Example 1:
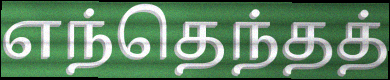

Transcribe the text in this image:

எந்தெந்தத்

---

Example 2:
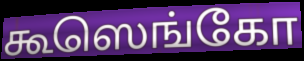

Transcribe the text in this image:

கூஸெங்கோ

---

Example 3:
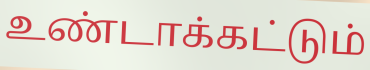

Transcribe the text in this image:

உண்டாக்கட்டும்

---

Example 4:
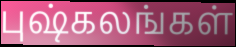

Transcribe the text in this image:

புஷ்கலங்கள்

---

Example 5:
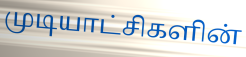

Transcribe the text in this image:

முடியாட்சிகளின்